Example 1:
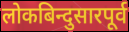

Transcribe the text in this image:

लोकबिन्दुसारपूर्व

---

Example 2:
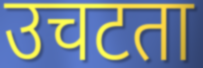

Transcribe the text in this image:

उचटता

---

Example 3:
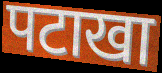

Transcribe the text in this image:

पटाखा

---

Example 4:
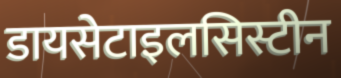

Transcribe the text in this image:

डायसेटाइलसिस्टीन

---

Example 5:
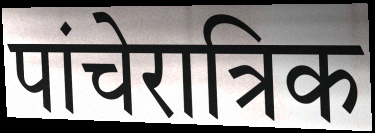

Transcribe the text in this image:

पांचेरात्रिक